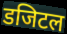
डजिटल